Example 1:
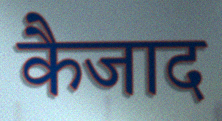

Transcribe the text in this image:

कैजाद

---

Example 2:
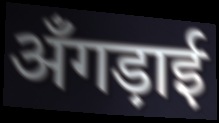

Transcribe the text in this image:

अँगड़ाई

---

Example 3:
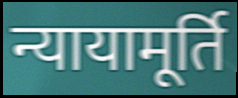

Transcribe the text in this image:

न्यायामूर्ति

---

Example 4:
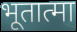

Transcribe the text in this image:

भूतात्मा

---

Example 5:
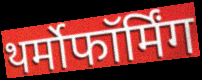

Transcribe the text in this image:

थर्मोफॉर्मिंग